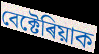
বেক্টেৰিয়াক